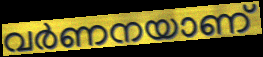
വർണനയാണ്